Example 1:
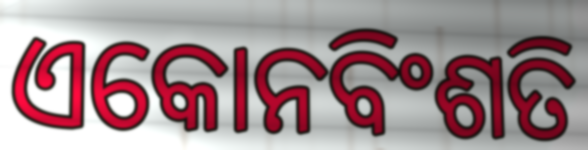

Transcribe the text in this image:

ଏକୋନବିଂଶତି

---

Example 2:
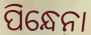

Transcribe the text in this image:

ପିନ୍ଧେନା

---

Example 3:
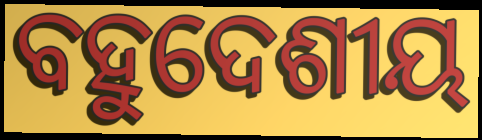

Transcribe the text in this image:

ବହୁଦେଶୀୟ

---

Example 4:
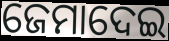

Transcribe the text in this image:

ଜେମାଦେଇ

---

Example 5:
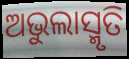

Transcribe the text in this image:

ଅଭୁଲାସ୍ମୃତି